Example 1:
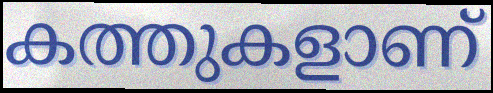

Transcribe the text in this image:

കത്തുകളാണ്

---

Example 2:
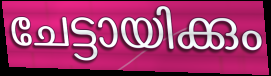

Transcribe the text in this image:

ചേട്ടായിക്കും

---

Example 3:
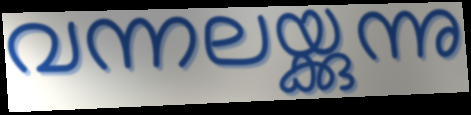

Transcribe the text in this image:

വന്നലയ്ക്കുന്നു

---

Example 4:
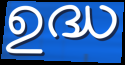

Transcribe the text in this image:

ഉദ്ധ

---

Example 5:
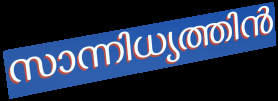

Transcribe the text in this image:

സാന്നിധ്യത്തിൻ